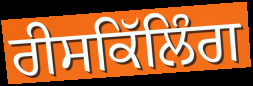
ਰੀਸਕਿੱਲਿੰਗ